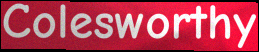
Colesworthy